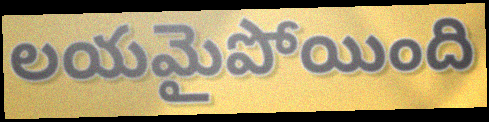
లయమైపోయింది